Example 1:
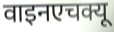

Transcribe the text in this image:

वाइनएचक्यू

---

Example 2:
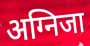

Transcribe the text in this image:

अग्निजा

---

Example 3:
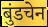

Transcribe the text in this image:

बुंडचेन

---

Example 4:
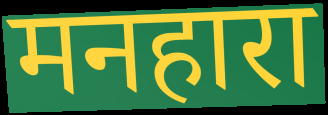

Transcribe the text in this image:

मनहारा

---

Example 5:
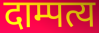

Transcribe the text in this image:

दाम्पत्य